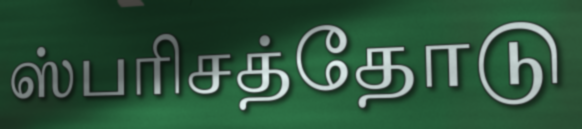
ஸ்பரிசத்தோடு